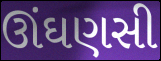
ઊંઘણસી